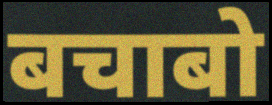
बचाबो